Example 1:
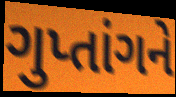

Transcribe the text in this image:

ગુપ્તાંગને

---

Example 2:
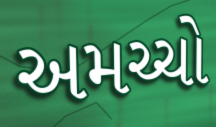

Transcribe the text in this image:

અમચ્ચો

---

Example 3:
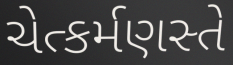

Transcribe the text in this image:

ચેત્કર્મણસ્તે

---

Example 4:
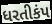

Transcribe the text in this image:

ધરતીકંપ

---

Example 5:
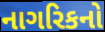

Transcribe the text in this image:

નાગરિકનો